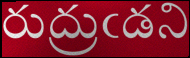
రుద్రుఁడని